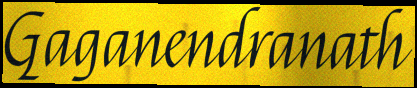
Gaganendranath